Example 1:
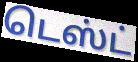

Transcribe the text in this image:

டெஸ்ட்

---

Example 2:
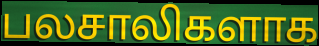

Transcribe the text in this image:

பலசாலிகளாக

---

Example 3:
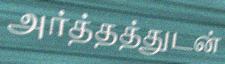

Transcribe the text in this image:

அர்த்தத்துடன்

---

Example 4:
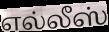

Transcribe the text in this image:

எல்லீஸ்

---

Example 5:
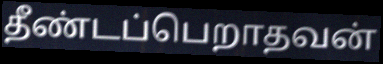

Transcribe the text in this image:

தீண்டப்பெறாதவன்